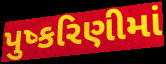
પુષ્કરિણીમાં